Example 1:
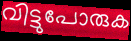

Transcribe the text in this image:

വിട്ടുപോരുക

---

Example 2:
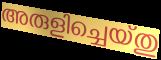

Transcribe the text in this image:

അരുളിച്ചെയ്തു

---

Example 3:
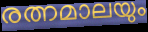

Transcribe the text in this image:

രത്നമാലയും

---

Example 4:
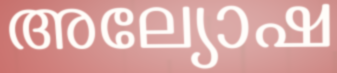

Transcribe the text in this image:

അല്യോഷ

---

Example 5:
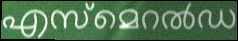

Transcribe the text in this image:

എസ്മെറൽഡ